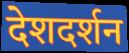
देशदर्शन